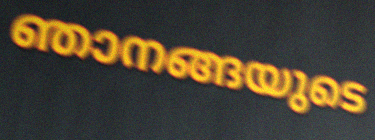
ഞാനങ്ങയുടെ